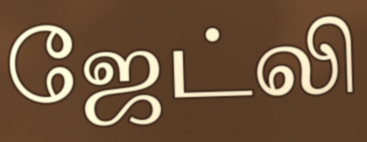
ஜேட்லி